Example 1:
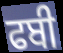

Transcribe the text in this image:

ਫਬੀ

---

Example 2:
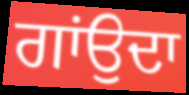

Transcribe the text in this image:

ਗਾਂਉਦਾ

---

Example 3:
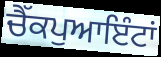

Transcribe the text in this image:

ਚੈੱਕਪੁਆਇੰਟਾਂ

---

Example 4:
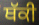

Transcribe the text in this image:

ਥੱਕੀ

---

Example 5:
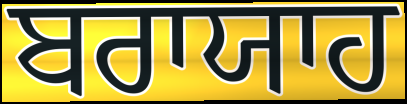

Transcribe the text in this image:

ਬਰਾਯਾਹ